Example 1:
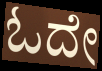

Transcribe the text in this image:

ಓದೇ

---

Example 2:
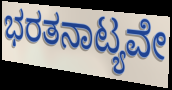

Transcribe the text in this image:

ಭರತನಾಟ್ಯವೇ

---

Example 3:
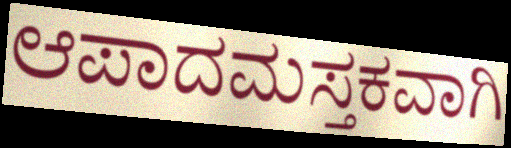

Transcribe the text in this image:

ಆಪಾದಮಸ್ತಕವಾಗಿ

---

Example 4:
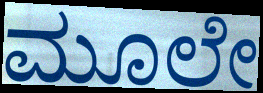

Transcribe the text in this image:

ಮೂಲೇ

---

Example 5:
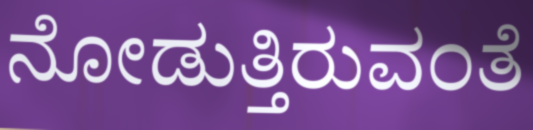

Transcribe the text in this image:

ನೋಡುತ್ತಿರುವಂತೆ